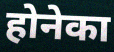
होनेका